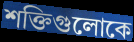
শক্তিগুলোকে